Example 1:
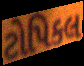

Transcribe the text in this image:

ટોપિકલ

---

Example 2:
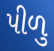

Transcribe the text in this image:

પીળુ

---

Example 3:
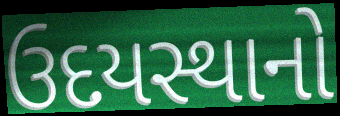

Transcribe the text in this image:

ઉદયસ્થાનો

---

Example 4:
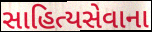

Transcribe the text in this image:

સાહિત્યસેવાના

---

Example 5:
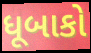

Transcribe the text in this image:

ધૂબાકો